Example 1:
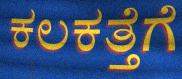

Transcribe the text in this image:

ಕಲಕತ್ತೆಗೆ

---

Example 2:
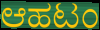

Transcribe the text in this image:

ಆಹಟಂ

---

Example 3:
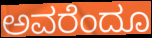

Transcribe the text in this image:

ಅವರೆಂದೂ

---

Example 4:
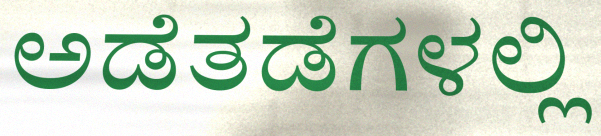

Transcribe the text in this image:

ಅಡೆತಡೆಗಳಲ್ಲಿ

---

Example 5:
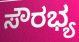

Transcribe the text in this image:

ಸೌರಭ್ಯ